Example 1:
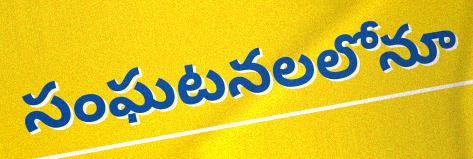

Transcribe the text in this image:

సంఘటనలలోనూ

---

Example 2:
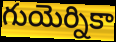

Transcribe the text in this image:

గుయెర్నికా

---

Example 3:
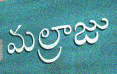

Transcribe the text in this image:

మల్రాజు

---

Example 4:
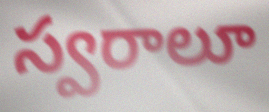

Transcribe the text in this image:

స్వరాలూ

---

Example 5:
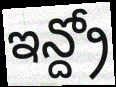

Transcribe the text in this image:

ఇన్ద్రో